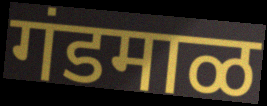
गंडमाळ